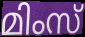
മിംസ്